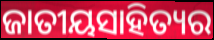
ଜାତୀୟସାହିତ୍ୟର